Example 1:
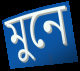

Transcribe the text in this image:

মুনে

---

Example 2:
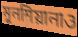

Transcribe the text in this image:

মুনশিয়ানাও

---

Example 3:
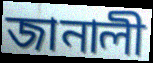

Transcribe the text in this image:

জানালী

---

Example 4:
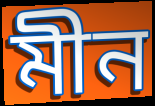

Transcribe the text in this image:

মীন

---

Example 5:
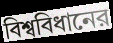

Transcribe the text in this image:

বিশ্ববিধানের